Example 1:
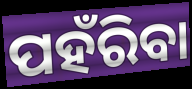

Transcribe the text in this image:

ପହଁରିବା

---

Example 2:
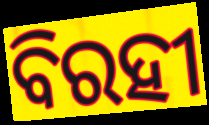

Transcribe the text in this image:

ବିରହୀ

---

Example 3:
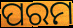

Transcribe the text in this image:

ପରମ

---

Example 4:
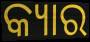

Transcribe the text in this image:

କ୍ୟାର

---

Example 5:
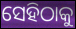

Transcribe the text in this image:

ସେହିଠାକୁ